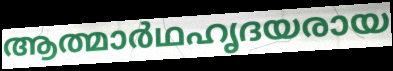
ആത്മാർഥഹൃദയരായ